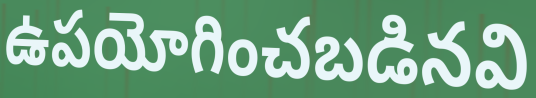
ఉపయోగించబడినవి